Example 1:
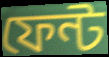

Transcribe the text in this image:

ফেন্ট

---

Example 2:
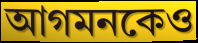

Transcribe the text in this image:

আগমনকেও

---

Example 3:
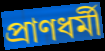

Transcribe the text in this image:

প্রাণধর্মী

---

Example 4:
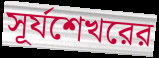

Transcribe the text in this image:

সূর্যশেখরের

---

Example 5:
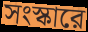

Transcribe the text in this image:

সংস্কারে